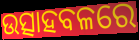
ଉତ୍ସାହବଳରେ